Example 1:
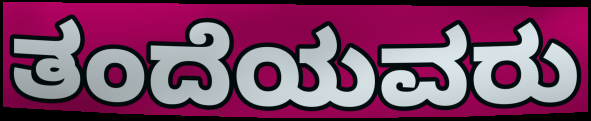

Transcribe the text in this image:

ತಂದೆಯವರು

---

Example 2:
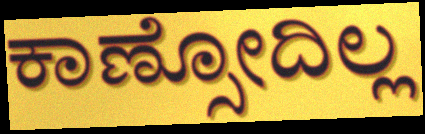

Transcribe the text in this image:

ಕಾಣ್ಸೋದಿಲ್ಲ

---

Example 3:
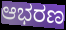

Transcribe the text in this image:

ಆಭರಣ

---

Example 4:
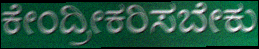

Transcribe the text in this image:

ಕೇಂದ್ರೀಕರಿಸಬೇಕು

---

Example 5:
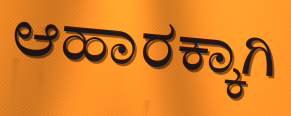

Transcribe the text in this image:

ಆಹಾರಕ್ಕಾಗಿ